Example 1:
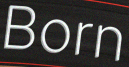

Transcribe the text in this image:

Born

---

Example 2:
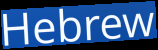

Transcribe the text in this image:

Hebrew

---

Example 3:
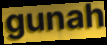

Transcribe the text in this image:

gunah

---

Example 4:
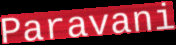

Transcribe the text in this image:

Paravani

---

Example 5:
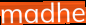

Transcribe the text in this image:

madhe